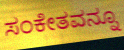
ಸಂಕೇತವನ್ನೂ